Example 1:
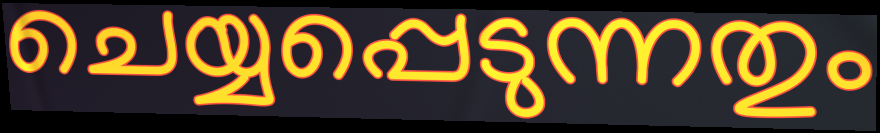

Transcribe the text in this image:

ചെയ്യപ്പെടുന്നതും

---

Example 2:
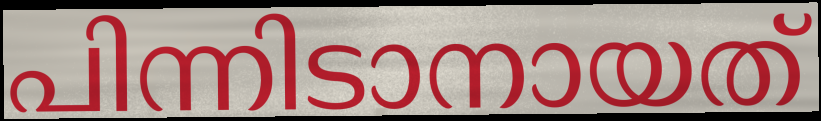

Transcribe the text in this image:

പിന്നിടാനായത്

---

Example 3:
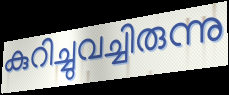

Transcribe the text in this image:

കുറിച്ചുവച്ചിരുന്നു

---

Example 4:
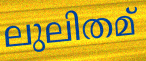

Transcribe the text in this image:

ലുലിതമ്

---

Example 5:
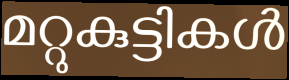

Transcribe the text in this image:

മറ്റുകുട്ടികൾ